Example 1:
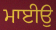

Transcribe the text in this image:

ਮਾਈਉ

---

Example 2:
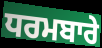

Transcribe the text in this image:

ਧਰਮਬਾਰੇ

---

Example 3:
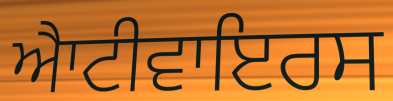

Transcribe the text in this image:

ਐਾਟੀਵਾਇਰਸ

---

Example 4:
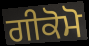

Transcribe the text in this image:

ਗੀਕੋਮੋ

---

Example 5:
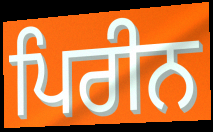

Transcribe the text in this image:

ਪਿਰੀਨ